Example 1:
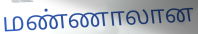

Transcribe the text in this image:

மண்ணாலான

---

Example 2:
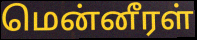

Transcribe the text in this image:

மென்னீரள்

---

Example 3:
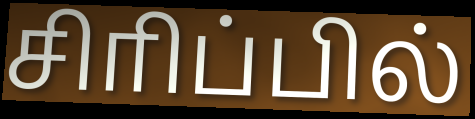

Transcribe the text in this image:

சிரிப்பில்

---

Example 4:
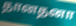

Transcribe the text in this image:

தானதனா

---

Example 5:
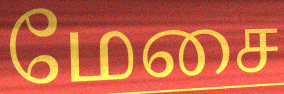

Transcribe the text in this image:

மேசை